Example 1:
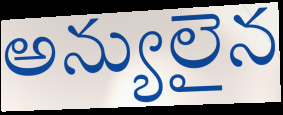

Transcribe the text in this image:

అన్యులైన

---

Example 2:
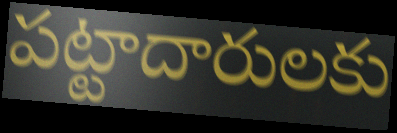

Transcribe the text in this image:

పట్టాదారులకు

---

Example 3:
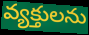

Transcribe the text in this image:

వ్యక్తులను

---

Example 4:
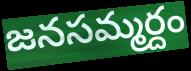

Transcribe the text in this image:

జనసమ్మర్దం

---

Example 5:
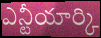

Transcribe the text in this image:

ఎన్టీయార్కి